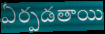
ఏర్పడతాయి